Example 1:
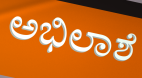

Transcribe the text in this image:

ಅಭಿಲಾಶೆ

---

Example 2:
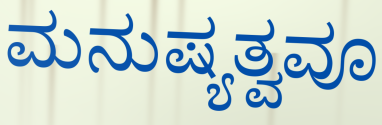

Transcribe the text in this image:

ಮನುಷ್ಯತ್ವವೂ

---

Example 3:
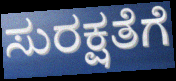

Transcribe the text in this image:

ಸುರಕ್ಷತೆಗೆ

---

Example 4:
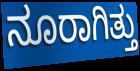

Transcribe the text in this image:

ನೂರಾಗಿತ್ತು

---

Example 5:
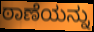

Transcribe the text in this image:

ಠಾಣೆಯನ್ನು